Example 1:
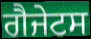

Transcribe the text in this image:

ਗੈਜੇਟਸ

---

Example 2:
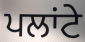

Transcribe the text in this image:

ਪਲਾਂਟੇ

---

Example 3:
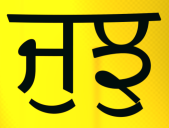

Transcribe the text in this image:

ਜੁਝੁ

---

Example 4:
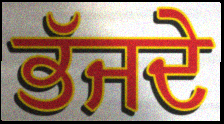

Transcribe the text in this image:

ਭੱਜਦੇ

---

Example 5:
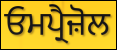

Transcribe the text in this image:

ਓਮਪ੍ਰੈਜ਼ੋਲ